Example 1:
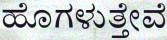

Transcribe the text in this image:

ಹೊಗಳುತ್ತೇವೆ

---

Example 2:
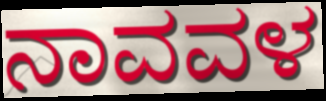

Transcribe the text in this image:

ನಾವವಳ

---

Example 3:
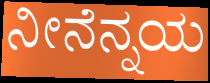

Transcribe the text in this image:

ನೀನೆನ್ನಯ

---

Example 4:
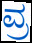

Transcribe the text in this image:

ವ್ರ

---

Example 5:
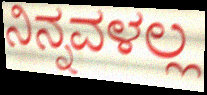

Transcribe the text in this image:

ನಿನ್ನವಳಲ್ಲ